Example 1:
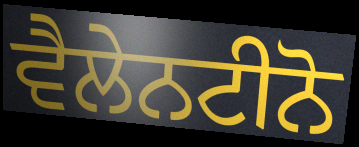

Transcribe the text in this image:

ਵੈਲੇਨਟੀਨੋ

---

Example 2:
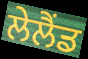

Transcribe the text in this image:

ਲੇਲੈਂਡ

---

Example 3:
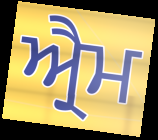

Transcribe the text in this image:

ਐ੍ਰਮ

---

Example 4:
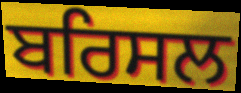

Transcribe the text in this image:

ਬਰਿਸਲ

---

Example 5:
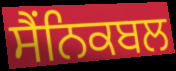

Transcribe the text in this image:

ਸੈੰਨਿਕਬਲ